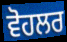
ਵੋਹਲਰ